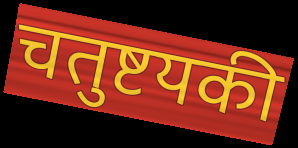
चतुष्टयकी